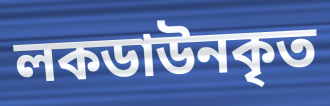
লকডাউনকৃত